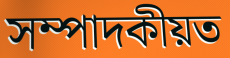
সম্পাদকীয়ত